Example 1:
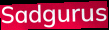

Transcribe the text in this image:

Sadgurus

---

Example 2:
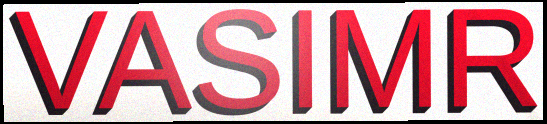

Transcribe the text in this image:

VASIMR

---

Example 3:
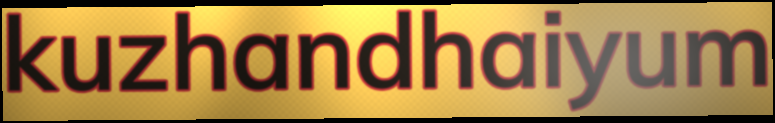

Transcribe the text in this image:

kuzhandhaiyum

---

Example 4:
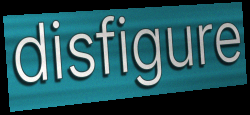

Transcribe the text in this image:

disfigure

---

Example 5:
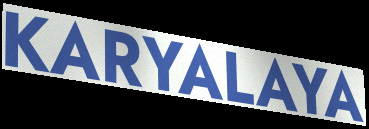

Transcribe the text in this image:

KARYALAYA